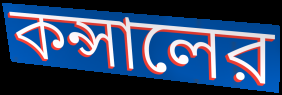
কন্সালের